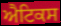
ਐਟਿਕਸ